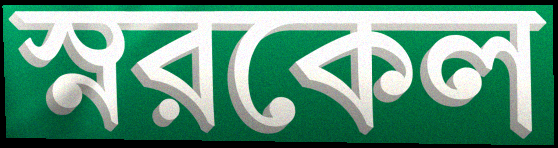
স্নরকেল